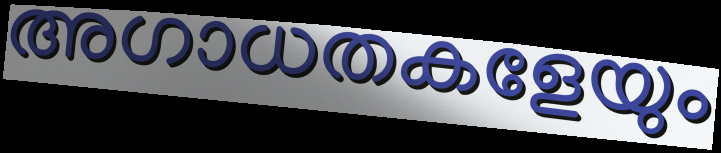
അഗാധതകളേയും